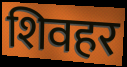
शिवहर